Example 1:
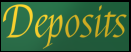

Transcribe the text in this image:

Deposits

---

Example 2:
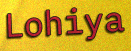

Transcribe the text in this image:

Lohiya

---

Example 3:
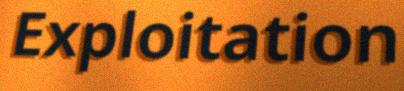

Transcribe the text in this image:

Exploitation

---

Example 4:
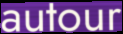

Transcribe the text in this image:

autour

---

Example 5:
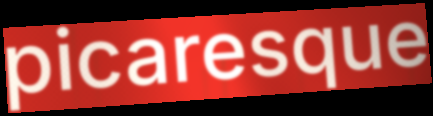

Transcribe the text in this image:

picaresque